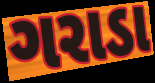
ગરાડા